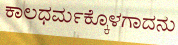
ಕಾಲಧರ್ಮಕ್ಕೊಳಗಾದನು